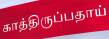
காத்திருப்பதாய்